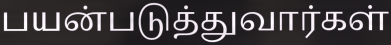
பயன்படுத்துவார்கள்